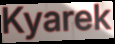
Kyarek